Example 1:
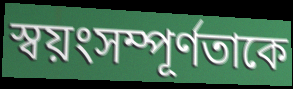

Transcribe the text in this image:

স্বয়ংসম্পূর্ণতাকে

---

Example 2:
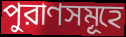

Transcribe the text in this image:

পুরাণসমূহে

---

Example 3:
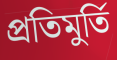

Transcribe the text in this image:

প্রতিমুর্তি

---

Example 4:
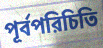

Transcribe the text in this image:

পূর্বপরিচিতি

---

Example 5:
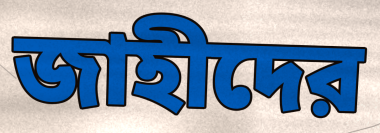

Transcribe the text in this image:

জাহীদের